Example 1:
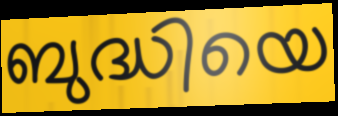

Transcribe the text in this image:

ബുദ്ധിയെ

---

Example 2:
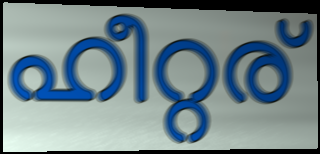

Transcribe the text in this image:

ഹീറ്റര്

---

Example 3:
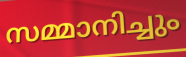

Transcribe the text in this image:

സമ്മാനിച്ചും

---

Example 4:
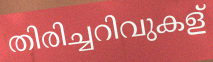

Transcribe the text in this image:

തിരിച്ചറിവുകള്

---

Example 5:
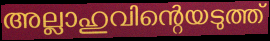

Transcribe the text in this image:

അല്ലാഹുവിന്റെയടുത്ത്